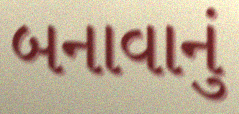
બનાવાનું